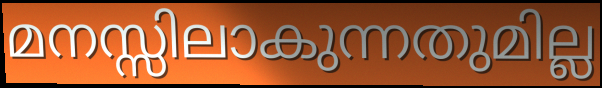
മനസ്സിലാകുന്നതുമില്ല